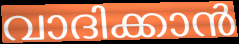
വാദിക്കാൻ